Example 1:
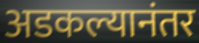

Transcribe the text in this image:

अडकल्यानंतर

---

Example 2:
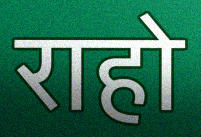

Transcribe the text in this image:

राहो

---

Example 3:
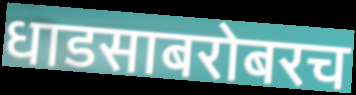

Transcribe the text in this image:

धाडसाबरोबरच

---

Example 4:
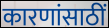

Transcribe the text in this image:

कारणांसाठीं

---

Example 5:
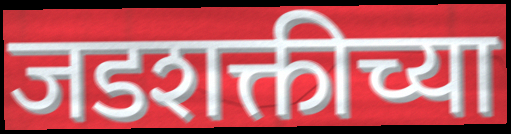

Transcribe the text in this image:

जडशक्तीच्या